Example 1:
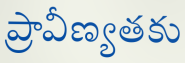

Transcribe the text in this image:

ప్రావీణ్యతకు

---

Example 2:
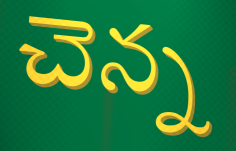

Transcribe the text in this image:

చెన్న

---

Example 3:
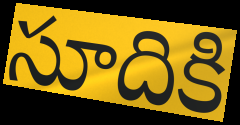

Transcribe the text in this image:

సూదికి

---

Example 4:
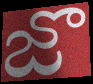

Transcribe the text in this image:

జొ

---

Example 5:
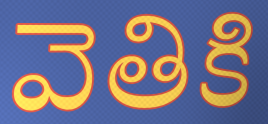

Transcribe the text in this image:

వెతికి